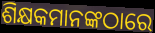
ଶିକ୍ଷକମାନଙ୍କଠାରେ